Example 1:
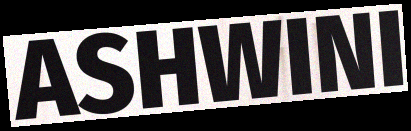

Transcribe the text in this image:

ASHWINI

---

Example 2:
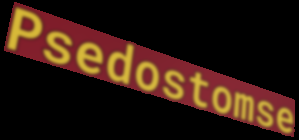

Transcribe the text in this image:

Psedostomse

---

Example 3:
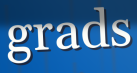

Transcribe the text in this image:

grads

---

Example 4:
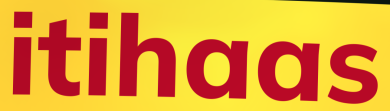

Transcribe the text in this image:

itihaas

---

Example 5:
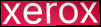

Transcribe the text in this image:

xerox